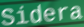
Sidera